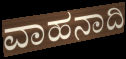
ವಾಹನಾದಿ